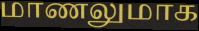
மாணலுமாக